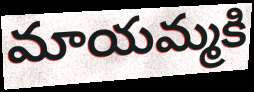
మాయమ్మకి